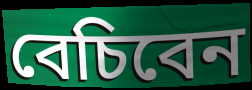
বেচিবেন